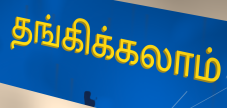
தங்கிக்கலாம்